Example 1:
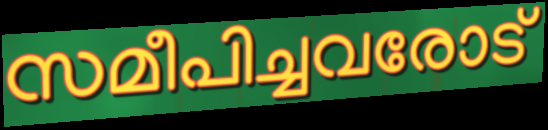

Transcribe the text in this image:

സമീപിച്ചവരോട്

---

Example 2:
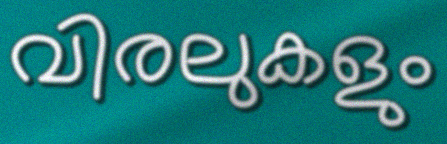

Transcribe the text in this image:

വിരലുകളും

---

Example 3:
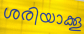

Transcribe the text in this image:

ശരിയാക്കൂ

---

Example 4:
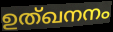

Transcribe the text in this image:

ഉത്ഖനനം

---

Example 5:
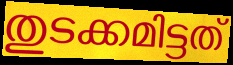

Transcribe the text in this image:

തുടക്കമിട്ടത്